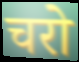
चरो